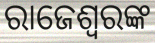
ରାଜେଶ୍ୱରଙ୍କ